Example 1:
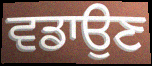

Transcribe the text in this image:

ਵਡਾਉਣ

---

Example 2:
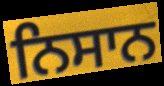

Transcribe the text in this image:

ਨਿਸਾਨ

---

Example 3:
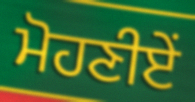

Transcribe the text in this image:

ਮੋਹਣੀਏਂ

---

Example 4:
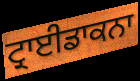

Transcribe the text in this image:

ਟ੍ਰਾਈਡਾਕਨਾ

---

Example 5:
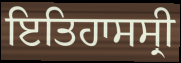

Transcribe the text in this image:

ਇਤਿਹਾਸਸ੍ਰੀ